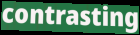
contrasting